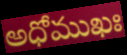
అధోముఖః